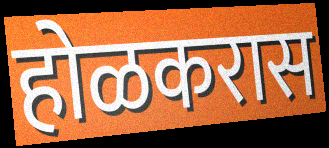
होळकरास